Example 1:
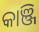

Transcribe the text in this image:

କାଞ୍ଜି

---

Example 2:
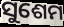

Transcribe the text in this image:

ସୁଶେମ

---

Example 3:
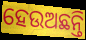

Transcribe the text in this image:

ହେଉଅଛନ୍ତି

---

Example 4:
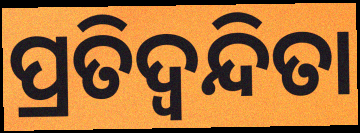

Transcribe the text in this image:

ପ୍ରତିଦ୍ୱନ୍ଦିତା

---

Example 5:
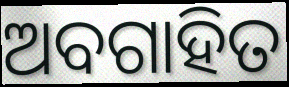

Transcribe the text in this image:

ଅବଗାହିତ